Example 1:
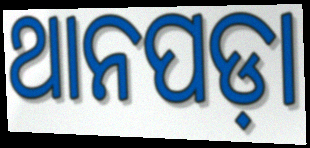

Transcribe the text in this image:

ଥାନପଡ଼ା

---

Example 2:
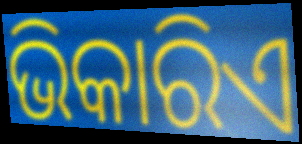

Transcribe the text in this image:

ଭିକାରିଏ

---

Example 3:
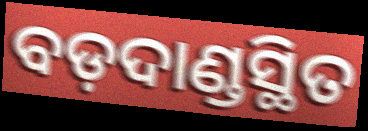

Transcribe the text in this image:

ବଡ଼ଦାଣ୍ଡସ୍ଥିତ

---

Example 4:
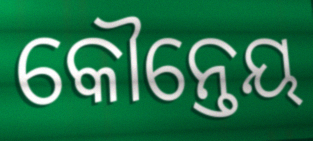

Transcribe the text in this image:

କୌନ୍ତେୟ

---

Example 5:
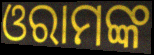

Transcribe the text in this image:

ଓରାମଙ୍କ